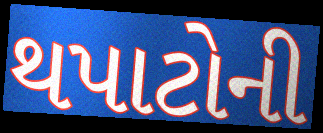
થપાટોની